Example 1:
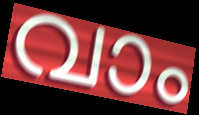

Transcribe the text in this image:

വാം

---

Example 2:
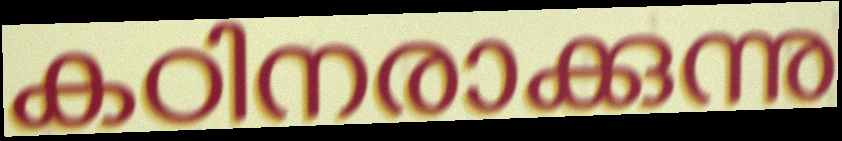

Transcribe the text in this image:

കഠിനരാക്കുന്നു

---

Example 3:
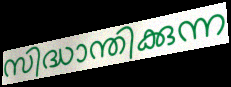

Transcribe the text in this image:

സിദ്ധാന്തിക്കുന്ന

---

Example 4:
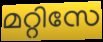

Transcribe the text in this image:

മറ്റിസേ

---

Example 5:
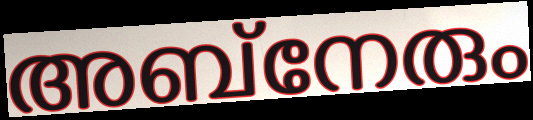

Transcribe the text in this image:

അബ്നേരും